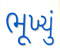
ભૂખ્યું